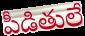
పీడితులే